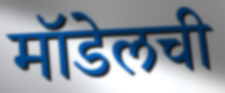
मॉडेलची